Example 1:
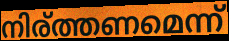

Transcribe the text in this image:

നിര്ത്തണമെന്ന്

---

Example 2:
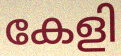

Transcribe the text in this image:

കേളി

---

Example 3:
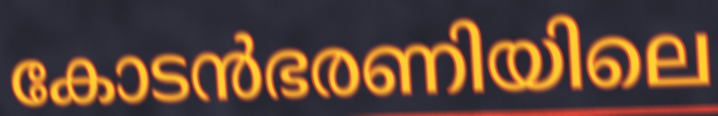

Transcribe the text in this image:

കോടൻഭരണിയിലെ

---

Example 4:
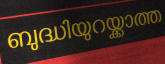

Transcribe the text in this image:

ബുദ്ധിയുറയ്ക്കാത്ത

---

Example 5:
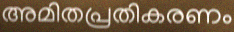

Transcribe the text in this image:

അമിതപ്രതികരണം